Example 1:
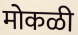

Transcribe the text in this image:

मोकळी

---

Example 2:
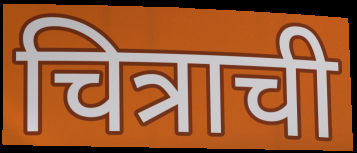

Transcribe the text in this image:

चित्राची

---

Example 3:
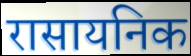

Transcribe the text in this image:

रासायनिक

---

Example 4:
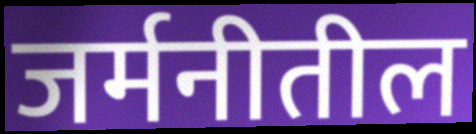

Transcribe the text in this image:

जर्मनीतील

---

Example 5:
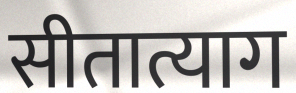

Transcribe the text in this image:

सीतात्याग